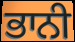
ਭਾਨੀ